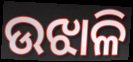
ଉଝାଳି